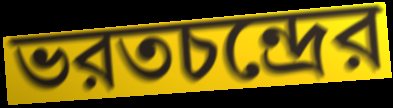
ভরতচন্দ্রের